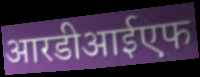
आरडीआईएफ